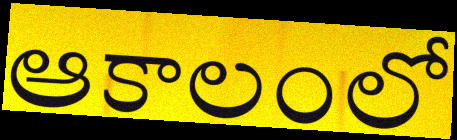
ఆకాలంలో